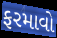
ફરમાવો